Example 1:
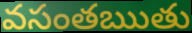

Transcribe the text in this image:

వసంతఋతు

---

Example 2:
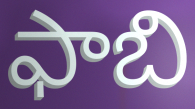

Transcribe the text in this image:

ఫాబి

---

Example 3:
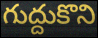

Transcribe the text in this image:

గుద్దుకొని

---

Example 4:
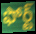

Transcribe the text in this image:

ఫోర్ట్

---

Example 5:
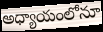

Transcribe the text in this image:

అధ్యాయంలోనూ